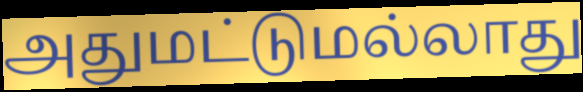
அதுமட்டுமல்லாது